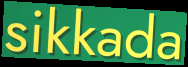
sikkada